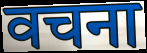
वचना